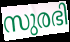
സുരഭി